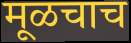
मूळचाच